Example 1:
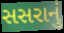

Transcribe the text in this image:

સસરાનું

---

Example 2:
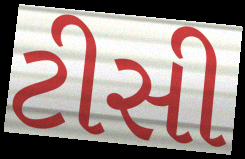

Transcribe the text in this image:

ટીસી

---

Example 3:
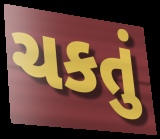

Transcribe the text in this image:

ચકતું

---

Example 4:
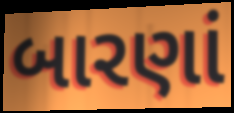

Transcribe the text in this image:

બારણાં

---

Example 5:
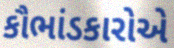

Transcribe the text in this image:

કૌભાંડકારોએ